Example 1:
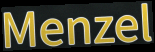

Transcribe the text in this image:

Menzel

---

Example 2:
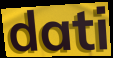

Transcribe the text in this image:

dati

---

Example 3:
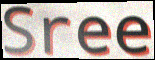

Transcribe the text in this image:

Sree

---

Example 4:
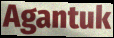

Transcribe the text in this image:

Agantuk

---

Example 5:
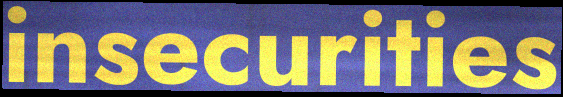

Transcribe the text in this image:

insecurities